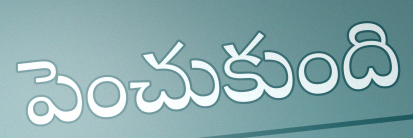
పెంచుకుంది